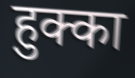
हुक्का